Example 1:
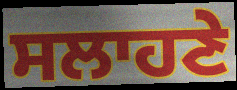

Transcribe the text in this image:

ਸਲਾਹਣੇ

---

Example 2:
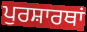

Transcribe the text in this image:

ਪੁਰਸ਼ਾਰਥਾਂ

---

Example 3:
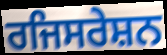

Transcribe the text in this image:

ਰਜਿਸਰੇਸ਼ਨ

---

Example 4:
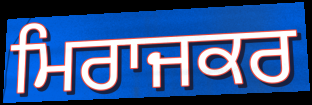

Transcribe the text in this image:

ਮਿਰਾਜਕਰ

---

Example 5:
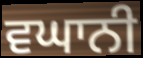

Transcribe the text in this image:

ਵਘਾਨੀ